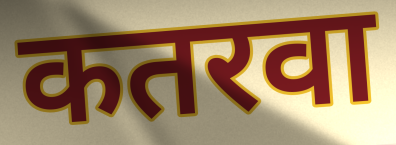
कतरवा